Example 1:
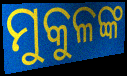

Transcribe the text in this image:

ମୁକୁଳଙ୍କ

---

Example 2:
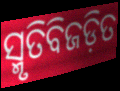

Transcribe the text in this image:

ସ୍ମୃତିବିଜଡ଼ିତ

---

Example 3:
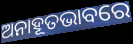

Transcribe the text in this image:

ଅନାହୂତଭାବରେ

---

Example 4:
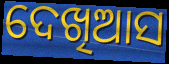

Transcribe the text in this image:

ଦେଖିଆସ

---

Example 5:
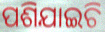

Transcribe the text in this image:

ପଶିଯାଇଚି